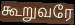
கூறுவரே